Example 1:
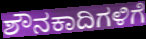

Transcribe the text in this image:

ಶೌನಕಾದಿಗಳಿಗೆ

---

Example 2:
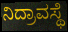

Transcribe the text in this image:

ನಿದ್ರಾವಸ್ಥೆ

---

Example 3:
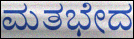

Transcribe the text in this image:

ಮತಭೇದ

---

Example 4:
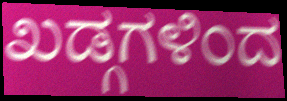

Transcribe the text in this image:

ಖಡ್ಗಗಳಿಂದ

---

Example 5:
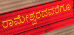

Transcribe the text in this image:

ರಾಮೇಶ್ವರದವರೆಗೂ